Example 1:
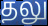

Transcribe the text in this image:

தலு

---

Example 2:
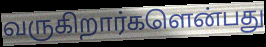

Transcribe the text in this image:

வருகிறார்களென்பது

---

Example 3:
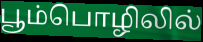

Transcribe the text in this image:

பூம்பொழிலில்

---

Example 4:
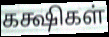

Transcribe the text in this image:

கக்ஷிகள்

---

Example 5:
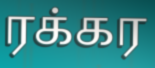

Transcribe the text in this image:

ரக்கர